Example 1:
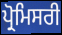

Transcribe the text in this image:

ਪ੍ਰੋਮਿਸਰੀ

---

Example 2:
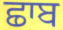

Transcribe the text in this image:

ਛਾਬ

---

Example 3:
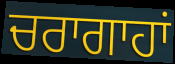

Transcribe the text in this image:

ਚਰਾਗਾਹਾਂ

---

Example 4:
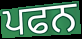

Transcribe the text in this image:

ਪਫਨ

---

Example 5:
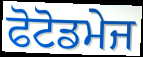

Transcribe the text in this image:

ਫੋਟੋਡਮੇਜ